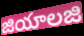
జియాలజి